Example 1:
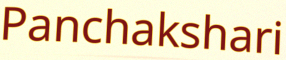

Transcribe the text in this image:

Panchakshari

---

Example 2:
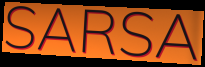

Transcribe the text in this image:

SARSA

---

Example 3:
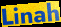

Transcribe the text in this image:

Linah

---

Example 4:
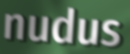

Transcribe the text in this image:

nudus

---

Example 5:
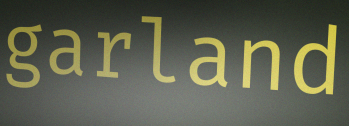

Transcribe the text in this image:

garland